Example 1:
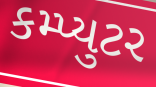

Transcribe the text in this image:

કમ્પ્યુટર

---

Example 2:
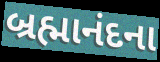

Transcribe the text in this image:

બ્રહ્માનંદના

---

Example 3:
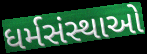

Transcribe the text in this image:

ધર્મસંસ્થાઓ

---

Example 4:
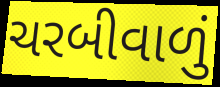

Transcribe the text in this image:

ચરબીવાળું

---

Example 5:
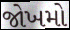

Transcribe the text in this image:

જોખમો